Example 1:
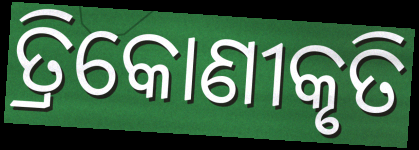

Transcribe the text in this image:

ତ୍ରିକୋଣୀକୃତି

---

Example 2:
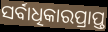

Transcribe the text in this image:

ସର୍ବାଧିକାରପ୍ରାପ୍ତ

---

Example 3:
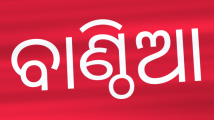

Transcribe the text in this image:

ବାଣ୍ଠିଆ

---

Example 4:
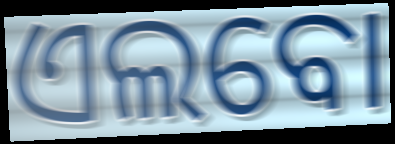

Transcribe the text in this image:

ଏଲବୋ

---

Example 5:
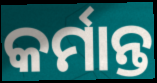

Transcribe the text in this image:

କର୍ମାନ୍ତ